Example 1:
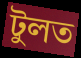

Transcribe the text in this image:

টুলত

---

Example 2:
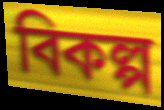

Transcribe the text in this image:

বিকল্প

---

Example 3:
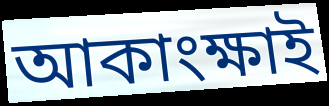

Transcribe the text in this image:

আকাংক্ষাই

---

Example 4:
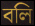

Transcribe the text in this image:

বলি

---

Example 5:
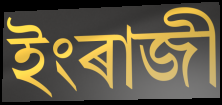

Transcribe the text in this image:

ইংৰাজী